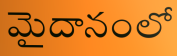
మైదానంలో